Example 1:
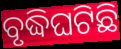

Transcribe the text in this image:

ବୃଦ୍ଧିଘଟିଛି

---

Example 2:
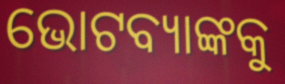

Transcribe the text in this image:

ଭୋଟବ୍ୟାଙ୍କକୁ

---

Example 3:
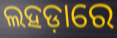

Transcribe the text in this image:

ଲହଡ଼ାରେ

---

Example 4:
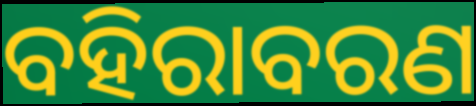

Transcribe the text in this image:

ବହିରାବରଣ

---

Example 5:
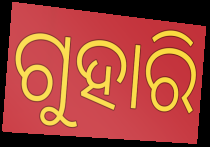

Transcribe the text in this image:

ଗୁହାରି